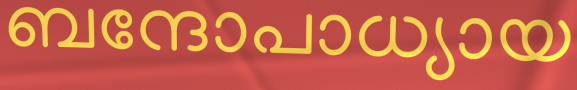
ബന്ദോപാധ്യായ